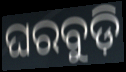
ଘରବୁଡ଼ି